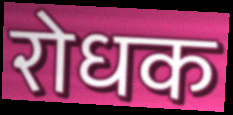
रोधक